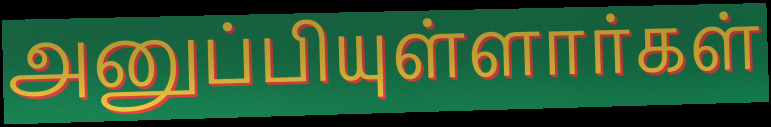
அனுப்பியுள்ளார்கள்